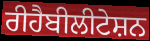
ਰੀਹੈਬੀਲੀਟੇਸ਼ਨ